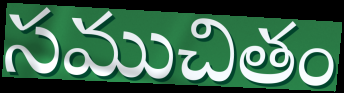
సముచితం